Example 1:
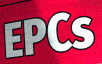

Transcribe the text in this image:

EPCs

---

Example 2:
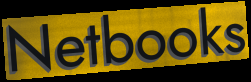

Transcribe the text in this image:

Netbooks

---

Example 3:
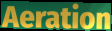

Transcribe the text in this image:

Aeration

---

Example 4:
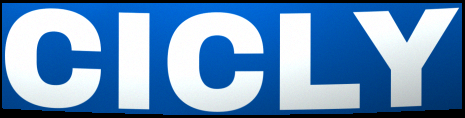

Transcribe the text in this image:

CICLY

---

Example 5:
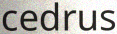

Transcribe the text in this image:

cedrus